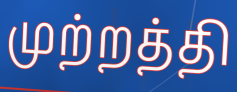
முற்றத்தி